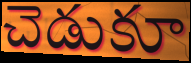
చెడుకూ